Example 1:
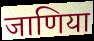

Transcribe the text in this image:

जाणिया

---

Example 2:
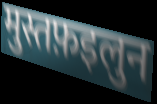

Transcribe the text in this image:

मुस्तफ़इलुन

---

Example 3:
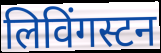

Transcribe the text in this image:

लिविंगस्टन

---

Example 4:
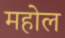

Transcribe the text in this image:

महोल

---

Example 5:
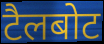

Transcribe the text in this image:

टैलबोट